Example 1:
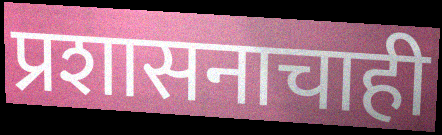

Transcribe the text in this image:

प्रशासनाचाही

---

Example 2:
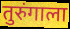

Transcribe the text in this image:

तुरुंगाला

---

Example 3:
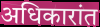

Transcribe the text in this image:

अधिकारांत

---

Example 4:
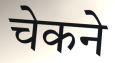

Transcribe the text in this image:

चेकने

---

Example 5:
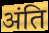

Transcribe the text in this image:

अंति